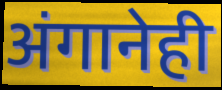
अंगानेही